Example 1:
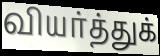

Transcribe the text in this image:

வியர்த்துக்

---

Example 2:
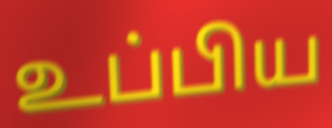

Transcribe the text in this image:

உப்பிய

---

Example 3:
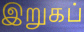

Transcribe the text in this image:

இறுகப்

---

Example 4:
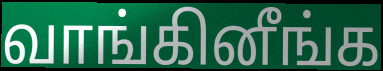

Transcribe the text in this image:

வாங்கினீங்க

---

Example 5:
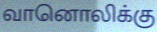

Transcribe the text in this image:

வானொலிக்கு